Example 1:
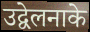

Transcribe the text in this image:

उद्वेलनाके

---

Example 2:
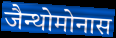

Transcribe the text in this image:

जैन्थोमोनास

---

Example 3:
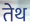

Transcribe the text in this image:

तेथ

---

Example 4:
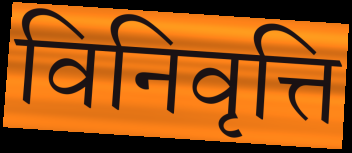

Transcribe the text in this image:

विनिवृत्ति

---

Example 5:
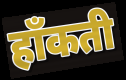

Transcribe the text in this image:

हाँकती